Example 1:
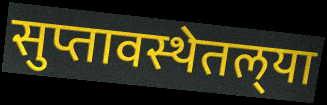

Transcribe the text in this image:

सुप्तावस्थेतल्या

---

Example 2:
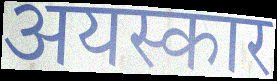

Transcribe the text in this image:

अयस्कार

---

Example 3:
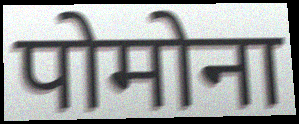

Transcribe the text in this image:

पोमोना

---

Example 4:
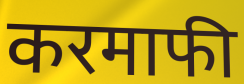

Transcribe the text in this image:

करमाफी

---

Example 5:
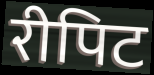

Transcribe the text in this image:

रीपिट